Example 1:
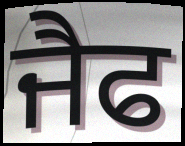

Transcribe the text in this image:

ਜੈਫ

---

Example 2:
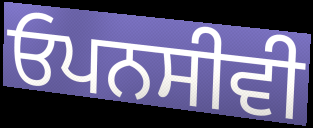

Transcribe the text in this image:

ਓਪਨਸੀਵੀ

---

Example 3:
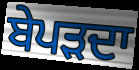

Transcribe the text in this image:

ਬੇਪੜਦਾ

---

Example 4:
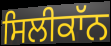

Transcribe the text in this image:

ਸਿਲੀਕਾੱਨ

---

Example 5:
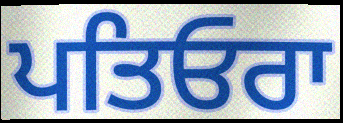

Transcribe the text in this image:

ਪਤਿਓਰਾ